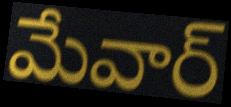
మేవార్